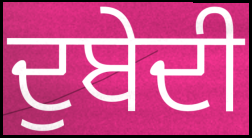
ਦੁਬੇਦੀ